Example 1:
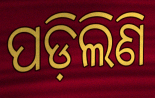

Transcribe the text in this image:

ପଡ଼ିଲିଣି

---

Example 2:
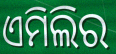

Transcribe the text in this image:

ଏମିଲିର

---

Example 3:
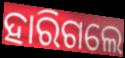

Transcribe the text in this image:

ହାରିଗଲେ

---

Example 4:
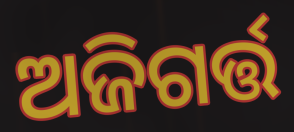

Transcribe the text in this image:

ଅଜିଗର୍ତ୍ତ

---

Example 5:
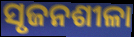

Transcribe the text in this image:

ସୃଜନଶୀଳା